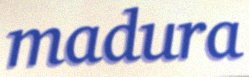
madura